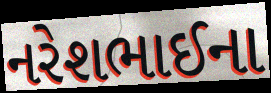
નરેશભાઈના